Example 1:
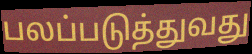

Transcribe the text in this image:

பலப்படுத்துவது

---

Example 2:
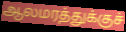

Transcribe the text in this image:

ஆலமரத்துக்குச்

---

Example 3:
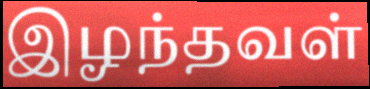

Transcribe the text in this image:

இழந்தவள்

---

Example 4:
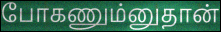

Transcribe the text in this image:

போகணும்னுதான்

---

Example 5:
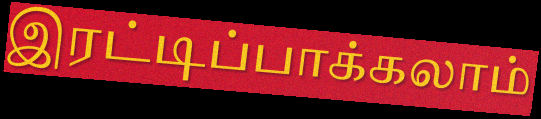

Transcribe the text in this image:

இரட்டிப்பாக்கலாம்